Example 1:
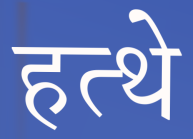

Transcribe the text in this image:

हत्थे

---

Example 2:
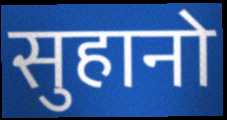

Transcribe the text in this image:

सुहानो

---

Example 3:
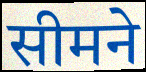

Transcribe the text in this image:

सीमने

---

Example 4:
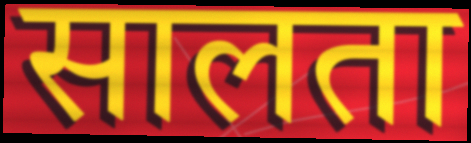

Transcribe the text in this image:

सालता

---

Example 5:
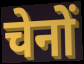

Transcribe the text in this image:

चेनों